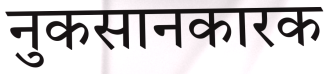
नुकसानकारक